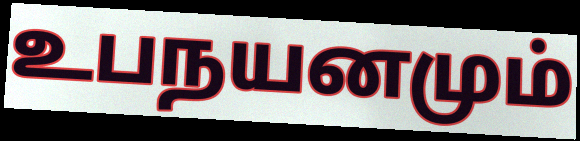
உபநயனமும்